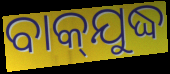
ବାକ୍‌ଯୁଦ୍ଧ